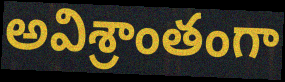
అవిశ్రాంతంగా